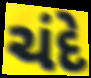
ચંદે